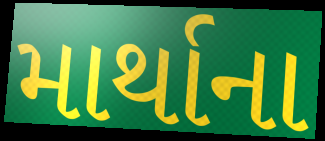
માર્થાના